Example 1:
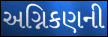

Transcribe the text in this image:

અગ્નિકણની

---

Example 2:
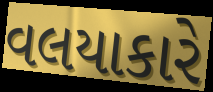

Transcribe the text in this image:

વલયાકારે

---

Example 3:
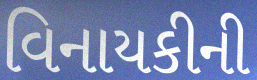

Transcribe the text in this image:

વિનાયકીની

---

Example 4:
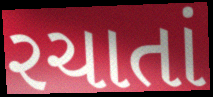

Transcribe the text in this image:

રચાતાં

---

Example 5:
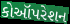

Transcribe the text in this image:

કોઑપરેશન